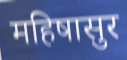
महिषासुर